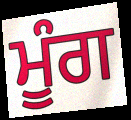
ਮੂੰਗ